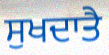
ਸੁਖਦਾਤੈ